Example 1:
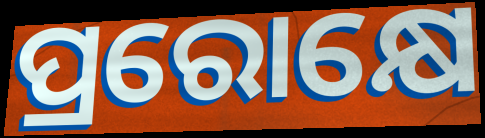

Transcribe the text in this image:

ପ୍ରରୋକ୍ଷେ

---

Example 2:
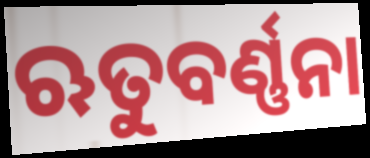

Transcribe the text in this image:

ଋତୁବର୍ଣ୍ଣନା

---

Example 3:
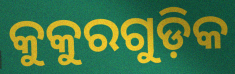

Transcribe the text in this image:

କୁକୁରଗୁଡ଼ିକ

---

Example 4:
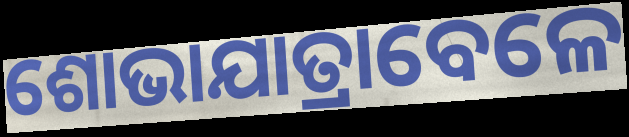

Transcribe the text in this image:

ଶୋଭାଯାତ୍ରାବେଳେ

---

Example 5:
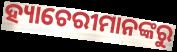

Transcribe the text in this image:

ହ୍ୟାଚେରୀମାନଙ୍କରୁ